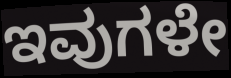
ಇವುಗಳೇ